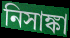
নিসাঙ্কা